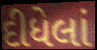
દીધેલાં